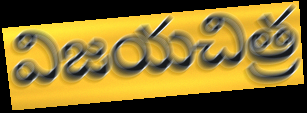
విజయచిత్ర